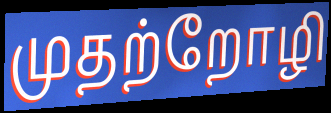
முதற்றோழி